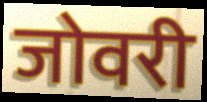
जोवरी